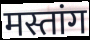
मस्तांग